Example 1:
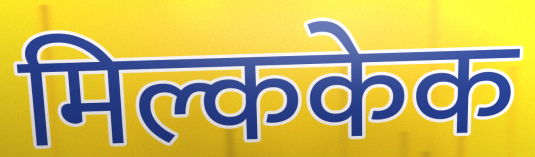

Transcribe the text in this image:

मिल्ककेक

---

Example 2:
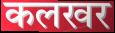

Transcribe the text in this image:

कलखर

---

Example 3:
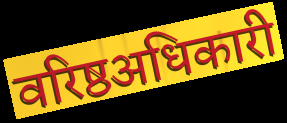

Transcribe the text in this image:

वरिष्ठअधिकारी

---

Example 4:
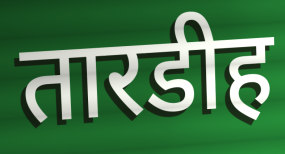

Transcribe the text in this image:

तारडीह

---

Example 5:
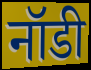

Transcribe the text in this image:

नॉडी